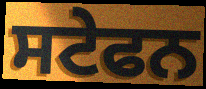
ਸਟੇਫਨ